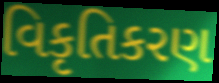
વિકૃતિકરણ